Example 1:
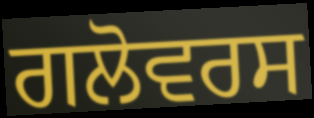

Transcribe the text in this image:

ਗਲੋਵਰਸ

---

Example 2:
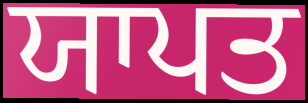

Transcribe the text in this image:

ਯਾਪਤ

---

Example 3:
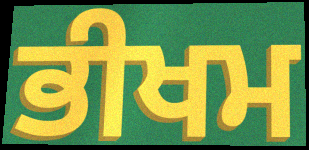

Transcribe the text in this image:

ਭੀਖਮ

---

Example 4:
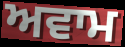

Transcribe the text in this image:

ਅਵਾਮ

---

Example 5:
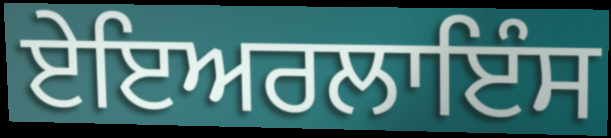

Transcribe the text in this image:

ਏਇਅਰਲਾਇੰਸ